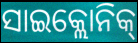
ସାଇକ୍ଲୋନିକ୍